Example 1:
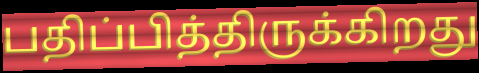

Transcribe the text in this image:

பதிப்பித்திருக்கிறது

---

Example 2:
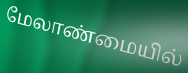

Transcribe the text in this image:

மேலாண்மையில்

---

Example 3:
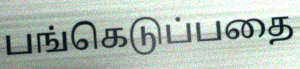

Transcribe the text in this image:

பங்கெடுப்பதை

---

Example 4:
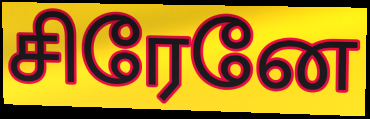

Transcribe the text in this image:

சிரேனே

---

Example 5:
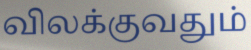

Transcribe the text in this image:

விலக்குவதும்